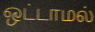
ஒட்டாமல்